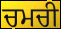
ਚਮਚੀ